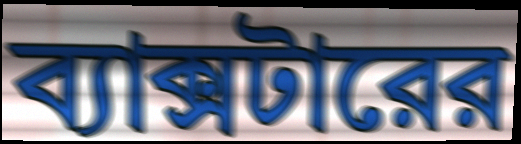
ব্যাক্সটারের